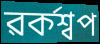
ৱৰ্কশ্বপ